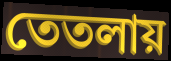
তেতলায়